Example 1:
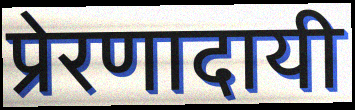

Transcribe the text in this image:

प्रेरणादायी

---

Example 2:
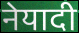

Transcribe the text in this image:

नेयादी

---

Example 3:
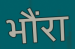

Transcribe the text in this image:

भौंरा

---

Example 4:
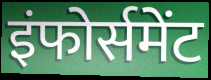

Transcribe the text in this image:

इंफोर्समेंट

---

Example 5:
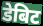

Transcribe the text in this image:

डेबिट